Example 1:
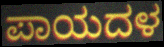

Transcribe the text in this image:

ಪಾಯದಳ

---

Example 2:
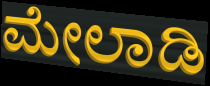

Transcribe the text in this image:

ಮೇಲಾಡಿ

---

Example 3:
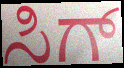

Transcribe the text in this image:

ಸಿಗ್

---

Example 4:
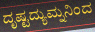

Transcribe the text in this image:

ದೃಷ್ಟದ್ಯುಮ್ನನಿಂದ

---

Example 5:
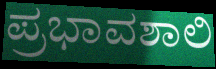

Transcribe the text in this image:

ಪ್ರಭಾವಶಾಲಿ